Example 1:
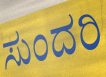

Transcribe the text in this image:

ಸುಂದರಿ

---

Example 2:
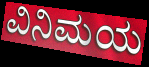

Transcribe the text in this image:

ವಿನಿಮಯ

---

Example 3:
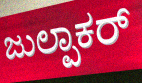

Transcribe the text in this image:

ಜುಲ್ಪಾಕರ್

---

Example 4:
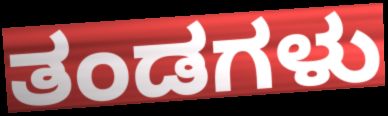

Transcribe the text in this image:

ತಂಡಗಳು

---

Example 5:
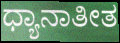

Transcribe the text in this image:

ಧ್ಯಾನಾತೀತ